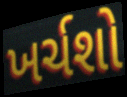
ખર્ચશો